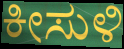
ಕೀಸುಳಿ